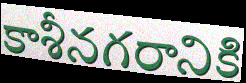
కాశీనగరానికి